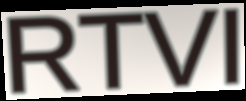
RTVI